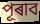
পূৰাব